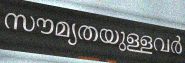
സൗമ്യതയുള്ളവർ